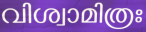
വിശ്വാമിത്രഃ